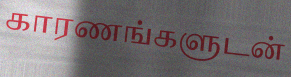
காரணங்களுடன்